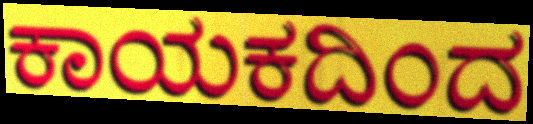
ಕಾಯಕದಿಂದ